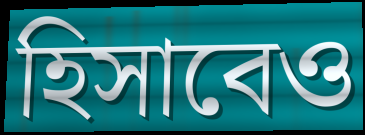
হিসাবেও